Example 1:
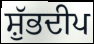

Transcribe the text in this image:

ਸ਼ੁੱਭਦੀਪ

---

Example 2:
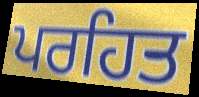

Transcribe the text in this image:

ਪਰਹਿਤ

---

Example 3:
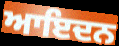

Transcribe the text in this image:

ਆਇਦਨ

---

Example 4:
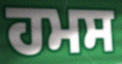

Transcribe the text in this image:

ਹਮਸ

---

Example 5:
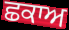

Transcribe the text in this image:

ਛਕਾਅ